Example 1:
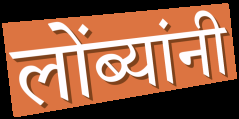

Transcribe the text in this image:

लोंब्यांनी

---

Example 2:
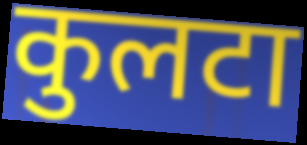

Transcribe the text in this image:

कुलटा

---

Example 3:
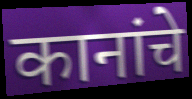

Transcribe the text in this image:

कानांचे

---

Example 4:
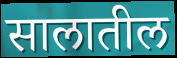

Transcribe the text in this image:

सालातील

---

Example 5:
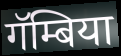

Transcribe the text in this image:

गॅम्बिया